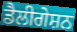
ਡੈਲੀਗੇਸ਼ਨ